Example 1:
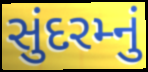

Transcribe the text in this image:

સુંદરમ્નું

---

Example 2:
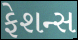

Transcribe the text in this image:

ફેશન્સ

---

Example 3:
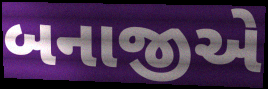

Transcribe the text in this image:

બનાજીએ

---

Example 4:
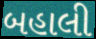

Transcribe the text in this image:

બહાલી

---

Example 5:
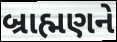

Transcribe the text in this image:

બ્રાહ્મણને